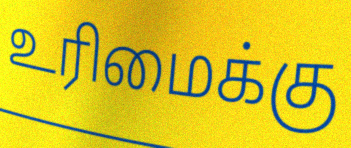
உரிமைக்கு